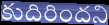
కుదిరిందని